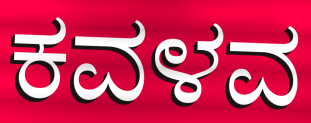
ಕವಳವ